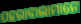
ପହରାବାଲାମାନେ